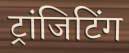
ट्रांजिटिंग